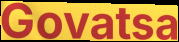
Govatsa